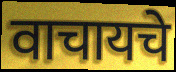
वाचायचे